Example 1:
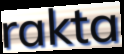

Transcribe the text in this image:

rakta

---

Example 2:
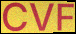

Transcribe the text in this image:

CVF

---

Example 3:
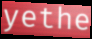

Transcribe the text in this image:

yethe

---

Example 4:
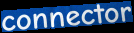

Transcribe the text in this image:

connector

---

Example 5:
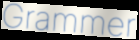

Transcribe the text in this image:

Grammer